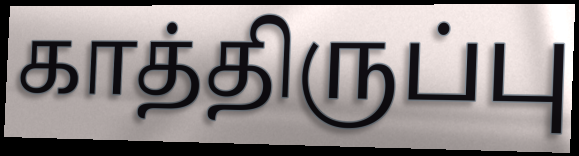
காத்திருப்பு